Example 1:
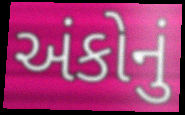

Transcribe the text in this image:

અંકોનું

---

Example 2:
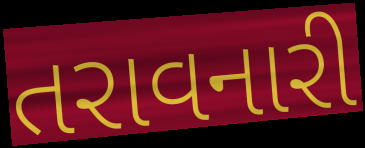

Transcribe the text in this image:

તરાવનારી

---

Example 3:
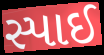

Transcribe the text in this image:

સ્પાઈ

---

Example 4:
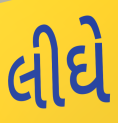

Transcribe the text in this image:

લીઘે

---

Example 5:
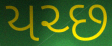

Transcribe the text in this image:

યચ્છ